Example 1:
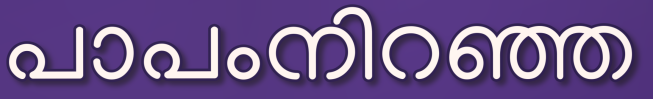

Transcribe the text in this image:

പാപംനിറഞ്ഞ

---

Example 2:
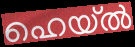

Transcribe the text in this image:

ഹെയ്ൽ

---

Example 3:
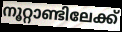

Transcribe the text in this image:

നൂറ്റാണ്ടിലേക്ക്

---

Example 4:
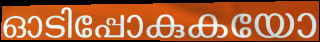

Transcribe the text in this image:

ഓടിപ്പോകുകയോ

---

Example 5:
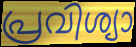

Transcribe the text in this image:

പ്രവിശ്യാ